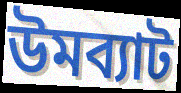
উমব্যাট